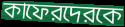
কাফেরদেরকে